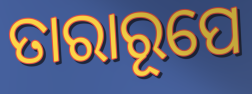
ତାରାରୂପେ